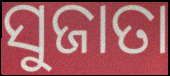
ସୁଜାତା